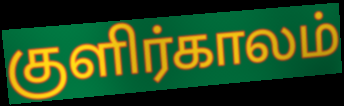
குளிர்காலம்